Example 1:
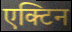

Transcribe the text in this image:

एक्टिन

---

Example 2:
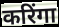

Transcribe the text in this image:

करिंगा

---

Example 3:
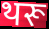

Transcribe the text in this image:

थरू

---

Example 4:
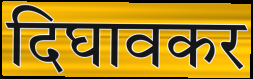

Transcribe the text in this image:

दिघावकर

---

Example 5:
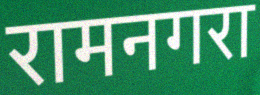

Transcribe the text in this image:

रामनगरा